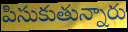
పిసుకుతున్నారు